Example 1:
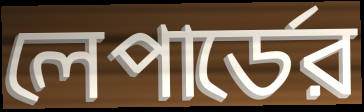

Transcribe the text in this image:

লেপার্ডের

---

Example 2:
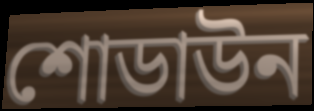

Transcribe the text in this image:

শোডাউন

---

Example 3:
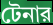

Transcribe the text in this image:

টেনার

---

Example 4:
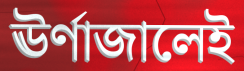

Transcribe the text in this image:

ঊর্ণাজালেই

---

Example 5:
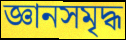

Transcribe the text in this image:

জ্ঞানসমৃদ্ধ